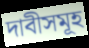
দাবীসমূহ